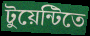
টুয়েন্টিতে